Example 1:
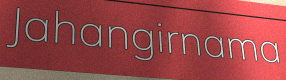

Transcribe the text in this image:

Jahangirnama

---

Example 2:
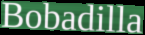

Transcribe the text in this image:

Bobadilla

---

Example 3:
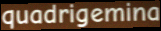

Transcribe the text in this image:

quadrigemina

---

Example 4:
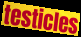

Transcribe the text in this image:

testicles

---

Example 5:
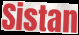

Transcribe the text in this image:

Sistan